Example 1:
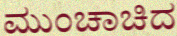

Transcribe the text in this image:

ಮುಂಚಾಚಿದ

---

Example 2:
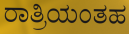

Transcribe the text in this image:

ರಾತ್ರಿಯಂತಹ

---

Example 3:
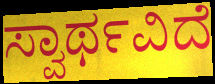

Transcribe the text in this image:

ಸ್ವಾರ್ಥವಿದೆ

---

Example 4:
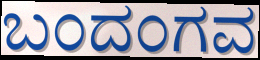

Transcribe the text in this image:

ಬಂದಂಗವ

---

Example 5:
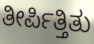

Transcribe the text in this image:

ತೀರ್ಪಿತ್ತಿತು